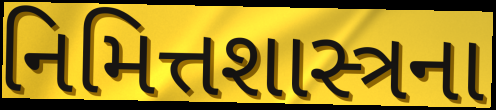
નિમિત્તશાસ્ત્રના